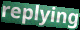
replying